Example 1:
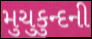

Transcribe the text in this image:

મુચુકુન્દની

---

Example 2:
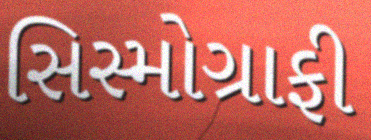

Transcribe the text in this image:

સિસ્મોગ્રાફી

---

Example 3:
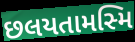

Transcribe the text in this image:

છલયતામસ્મિ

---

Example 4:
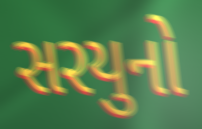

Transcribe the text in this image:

સરયુનો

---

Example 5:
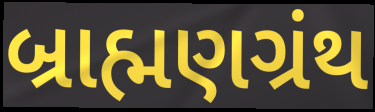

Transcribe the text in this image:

બ્રાહ્મણગ્રંથ